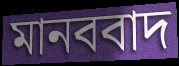
মানববাদ